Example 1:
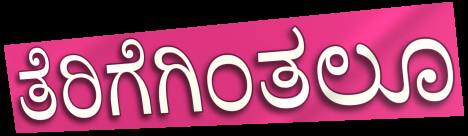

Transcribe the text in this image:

ತೆರಿಗೆಗಿಂತಲೂ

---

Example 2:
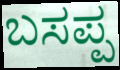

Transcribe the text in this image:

ಬಸಪ್ಪ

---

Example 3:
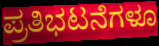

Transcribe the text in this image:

ಪ್ರತಿಭಟನೆಗಳೂ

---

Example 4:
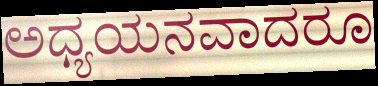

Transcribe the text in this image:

ಅಧ್ಯಯನವಾದರೂ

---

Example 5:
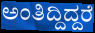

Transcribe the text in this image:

ಅಂತಿದ್ದಿದ್ದರೆ